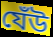
যেঁউ